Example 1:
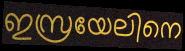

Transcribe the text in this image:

ഇസ്രയേലിനെ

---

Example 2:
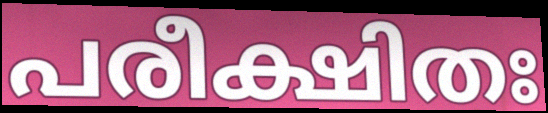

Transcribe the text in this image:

പരീക്ഷിതഃ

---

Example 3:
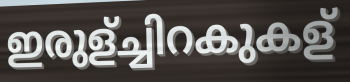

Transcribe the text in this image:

ഇരുള്ച്ചിറകുകള്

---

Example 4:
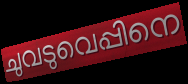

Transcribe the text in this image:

ചുവടുവെപ്പിനെ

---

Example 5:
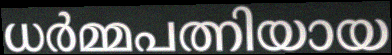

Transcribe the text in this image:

ധർമ്മപത്നിയായ